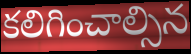
కలిగించాల్సిన